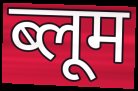
ब्लूम